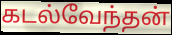
கடல்வேந்தன்